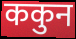
ककुन